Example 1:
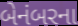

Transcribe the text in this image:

બેનંબરના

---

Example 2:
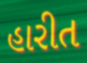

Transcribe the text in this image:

હારીત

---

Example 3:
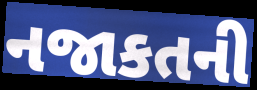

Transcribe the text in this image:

નજાકતની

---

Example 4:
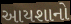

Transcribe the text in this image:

આયશાનો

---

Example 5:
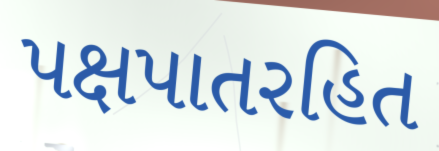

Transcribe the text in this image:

પક્ષપાતરહિત